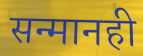
सन्मानही